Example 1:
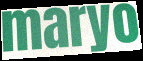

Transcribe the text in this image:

maryo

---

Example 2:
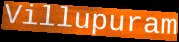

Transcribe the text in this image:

Villupuram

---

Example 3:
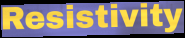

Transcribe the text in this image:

Resistivity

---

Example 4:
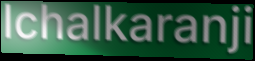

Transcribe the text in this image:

Ichalkaranji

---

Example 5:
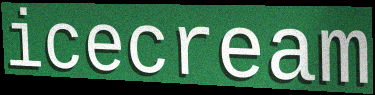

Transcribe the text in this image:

icecream